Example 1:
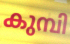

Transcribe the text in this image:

കുമ്പി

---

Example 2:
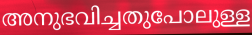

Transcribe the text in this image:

അനുഭവിച്ചതുപോലുള്ള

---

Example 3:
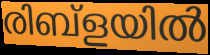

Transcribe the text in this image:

രിബ്ളയിൽ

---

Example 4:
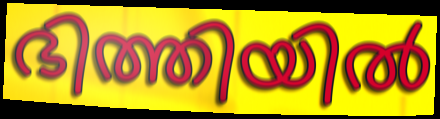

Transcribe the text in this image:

ഭിത്തിയിൽ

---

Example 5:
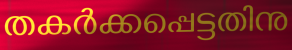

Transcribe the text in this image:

തകർക്കപ്പെട്ടതിനു